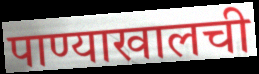
पाण्याखालची